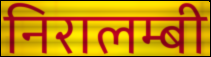
निरालम्बी